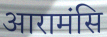
आरामंसि